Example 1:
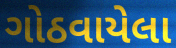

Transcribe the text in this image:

ગોઠવાયેલા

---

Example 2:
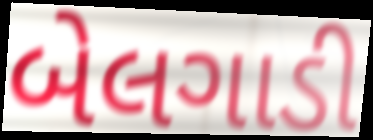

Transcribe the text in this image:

બેલગાડી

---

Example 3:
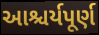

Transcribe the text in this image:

આશ્ચર્યપૂર્ણ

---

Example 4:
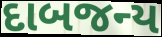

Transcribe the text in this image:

દાબજન્ય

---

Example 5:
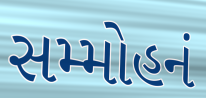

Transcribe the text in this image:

સમ્મોહનં